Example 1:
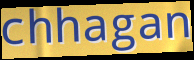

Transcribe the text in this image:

chhagan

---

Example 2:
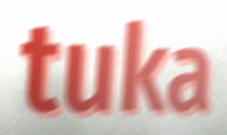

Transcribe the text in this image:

tuka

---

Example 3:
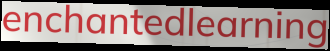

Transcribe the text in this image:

enchantedlearning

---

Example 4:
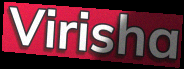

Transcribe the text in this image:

Virisha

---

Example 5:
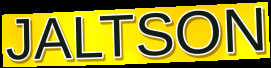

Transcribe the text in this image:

JALTSON